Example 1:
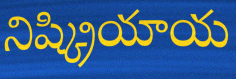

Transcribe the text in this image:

నిష్క్రియాయ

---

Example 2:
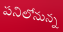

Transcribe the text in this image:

పనిలోనున్న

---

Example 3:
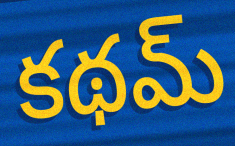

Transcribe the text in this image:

కథమ్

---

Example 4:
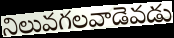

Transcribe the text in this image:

నిలువగలవాడెవడు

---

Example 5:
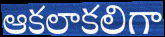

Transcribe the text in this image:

ఆకలాకలిగా